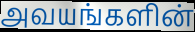
அவயங்களின்